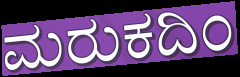
ಮರುಕದಿಂ